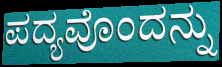
ಪದ್ಯವೊಂದನ್ನು